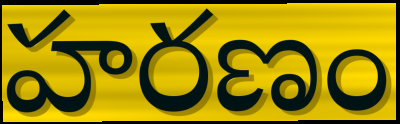
హరణం